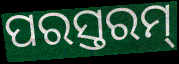
ପରସ୍ତରମ୍